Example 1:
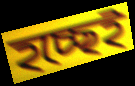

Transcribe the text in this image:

হচ্ছেই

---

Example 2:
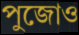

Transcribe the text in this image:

পুজোও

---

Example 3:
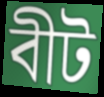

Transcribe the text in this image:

বীট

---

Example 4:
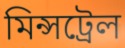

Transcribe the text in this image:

মিন্সট্রেল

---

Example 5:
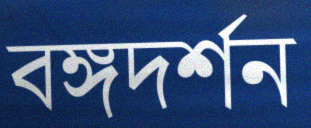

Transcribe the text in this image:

বঙ্গদর্শন